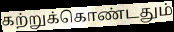
கற்றுக்கொண்டதும்